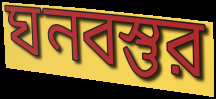
ঘনবস্তুর